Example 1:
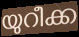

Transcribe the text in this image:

യുറീക്ക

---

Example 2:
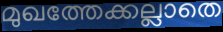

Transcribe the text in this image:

മുഖത്തേക്കല്ലാതെ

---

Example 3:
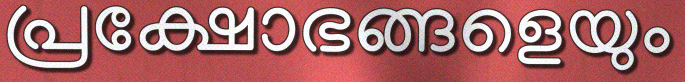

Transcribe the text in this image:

പ്രക്ഷോഭങ്ങളെയും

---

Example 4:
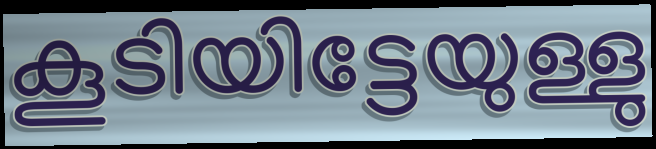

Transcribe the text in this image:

കൂടിയിട്ടേയുള്ളു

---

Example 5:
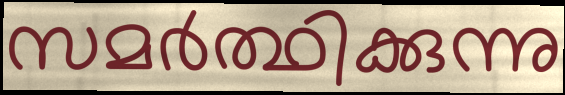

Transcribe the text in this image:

സമർത്ഥിക്കുന്നു